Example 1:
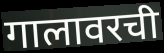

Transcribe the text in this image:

गालावरची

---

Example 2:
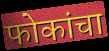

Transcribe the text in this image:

फोकांचा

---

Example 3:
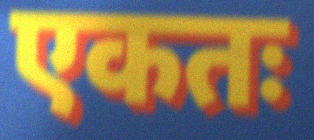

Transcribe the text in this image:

एकतः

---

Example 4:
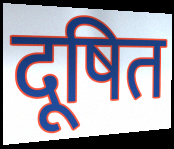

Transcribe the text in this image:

दूषित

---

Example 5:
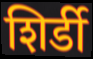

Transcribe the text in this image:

शिर्डी